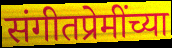
संगीतप्रेमींच्या